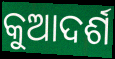
କୁଆଦର୍ଶ